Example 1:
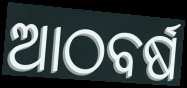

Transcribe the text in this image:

ଆଠବର୍ଷ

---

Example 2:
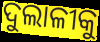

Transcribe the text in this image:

ଦୁଲାଳୀକୁ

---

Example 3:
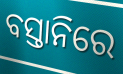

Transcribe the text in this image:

ବସ୍ତାନିରେ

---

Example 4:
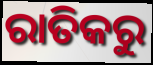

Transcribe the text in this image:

ରାତିକରୁ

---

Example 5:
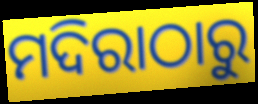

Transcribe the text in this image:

ମଦିରାଠାରୁ